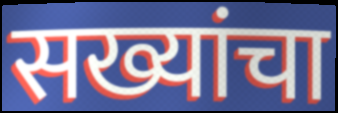
सख्यांचा